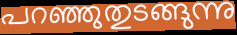
പറഞ്ഞുതുടങ്ങുന്നു